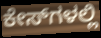
ಕೇಸ್‌ಗಳಲ್ಲಿ